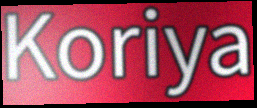
Koriya